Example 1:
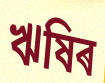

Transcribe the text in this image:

ঋষিৰ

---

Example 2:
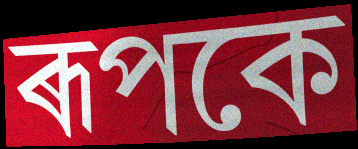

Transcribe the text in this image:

ৰূপকে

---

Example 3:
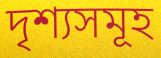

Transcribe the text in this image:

দৃশ্যসমূহ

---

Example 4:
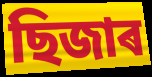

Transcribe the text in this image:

ছিজাৰ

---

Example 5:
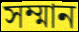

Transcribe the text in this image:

সম্মান